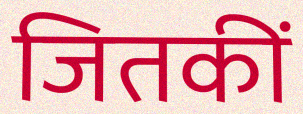
जितकीं